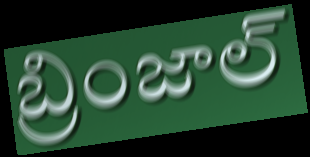
బ్రింజాల్